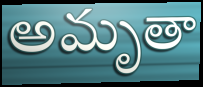
అమృతా